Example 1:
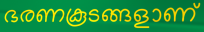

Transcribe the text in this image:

ഭരണകൂടങ്ങളാണ്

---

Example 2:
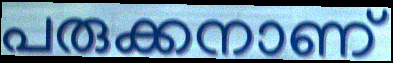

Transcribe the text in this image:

പരുക്കനാണ്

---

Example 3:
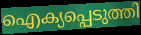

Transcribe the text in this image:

ഐക്യപ്പെടുത്തി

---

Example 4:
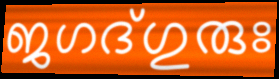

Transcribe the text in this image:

ജഗദ്ഗുരുഃ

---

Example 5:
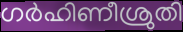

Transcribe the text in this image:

ഗർഹിണീശ്രുതി